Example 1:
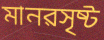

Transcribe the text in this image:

মানৱসৃষ্ট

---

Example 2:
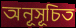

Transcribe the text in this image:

অনূসূচিত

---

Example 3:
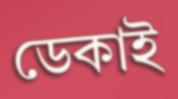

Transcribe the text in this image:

ডেকাই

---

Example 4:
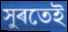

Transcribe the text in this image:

সুৰতেই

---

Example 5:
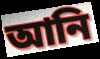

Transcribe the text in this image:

আনি